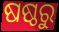
ଷଷ୍ଠରୁ